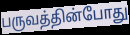
பருவத்தின்போது